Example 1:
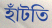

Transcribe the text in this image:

হাঁটতি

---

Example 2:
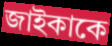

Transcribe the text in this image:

জাইকাকে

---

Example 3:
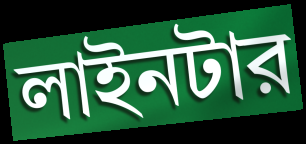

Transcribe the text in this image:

লাইনটার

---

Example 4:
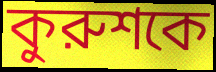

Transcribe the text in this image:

কুরুশকে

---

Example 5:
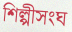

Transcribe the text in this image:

শিল্পীসংঘ